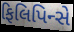
ફિલિપિન્સે